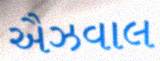
ઐઝવાલ